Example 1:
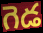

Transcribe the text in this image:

గెడ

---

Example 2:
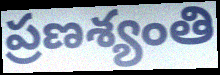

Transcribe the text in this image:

ప్రణశ్యంతి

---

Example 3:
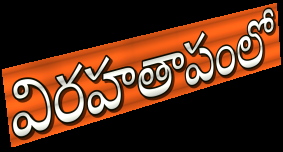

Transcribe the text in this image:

విరహతాపంలో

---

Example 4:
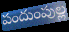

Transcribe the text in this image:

పందుంపుల్ల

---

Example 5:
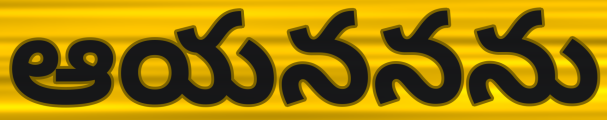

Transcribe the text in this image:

ఆయననను